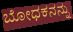
ಬೋಧಕನನ್ನು